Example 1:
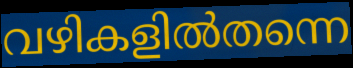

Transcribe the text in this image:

വഴികളിൽതന്നെ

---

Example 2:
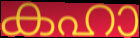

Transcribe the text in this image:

കഹാ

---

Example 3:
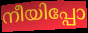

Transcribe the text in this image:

നീയിപ്പോ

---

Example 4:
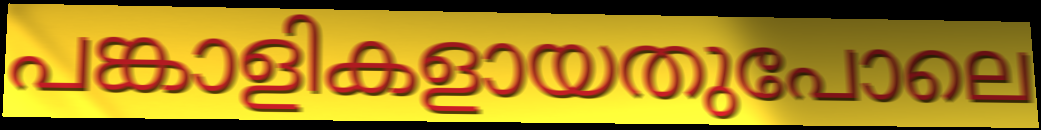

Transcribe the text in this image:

പങ്കാളികളായതുപോലെ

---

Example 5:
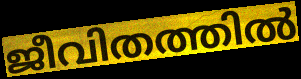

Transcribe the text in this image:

ജീവിതത്തിൽ